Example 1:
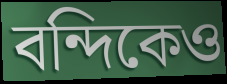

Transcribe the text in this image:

বন্দিকেও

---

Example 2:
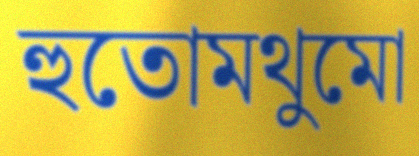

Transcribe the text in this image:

হুতোমথুমো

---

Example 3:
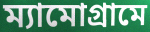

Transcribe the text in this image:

ম্যামোগ্রামে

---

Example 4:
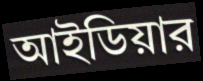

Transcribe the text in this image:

আইডিয়ার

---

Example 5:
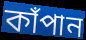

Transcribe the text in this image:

কাঁপান